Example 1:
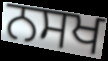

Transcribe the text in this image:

ਨਸਖ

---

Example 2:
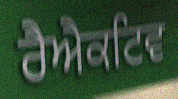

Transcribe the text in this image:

ਰੈਐਕਟਿਵ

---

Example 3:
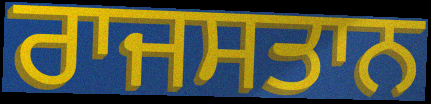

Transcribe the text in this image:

ਰਾਜਸਤਾਨ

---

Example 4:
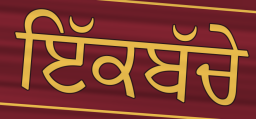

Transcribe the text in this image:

ਇੱਕਬੱਚੇ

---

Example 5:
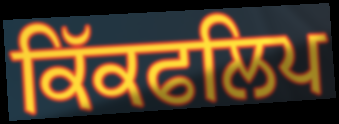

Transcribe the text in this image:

ਕਿੱਕਫਲਿਪ